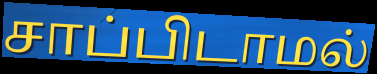
சாப்பிடாமல்